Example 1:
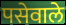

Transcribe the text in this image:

पसेवाले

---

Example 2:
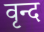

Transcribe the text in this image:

वृन्द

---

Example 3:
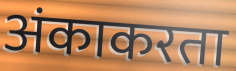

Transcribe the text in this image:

अंकाकरता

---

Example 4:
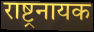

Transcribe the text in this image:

राष्ट्रनायक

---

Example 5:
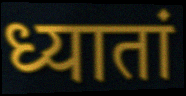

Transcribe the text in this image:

ध्यातां